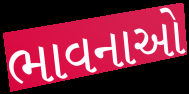
ભાવનાઓ